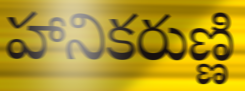
హానికరుణ్ణి